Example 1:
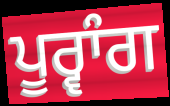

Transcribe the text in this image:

ਪੂਰ੍ਵਾੰਗ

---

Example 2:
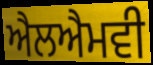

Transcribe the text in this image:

ਐਲਐਮਵੀ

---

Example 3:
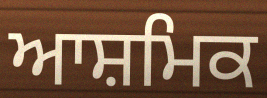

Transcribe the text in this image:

ਆਸ਼ਮਿਕ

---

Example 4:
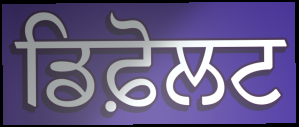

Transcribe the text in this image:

ਡਿਫ਼ੋਲਟ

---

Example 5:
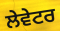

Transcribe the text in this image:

ਲੇਵੇਟਰ